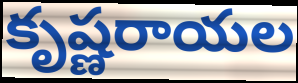
కృష్ణరాయల